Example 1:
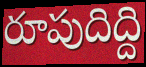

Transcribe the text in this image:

రూపుదిద్ది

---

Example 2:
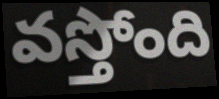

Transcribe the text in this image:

వస్తోంది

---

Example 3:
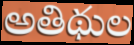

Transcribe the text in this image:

అతిథుల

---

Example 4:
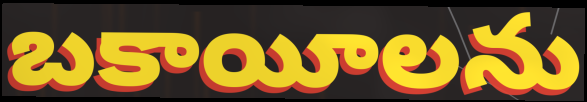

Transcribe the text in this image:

బకాయీలను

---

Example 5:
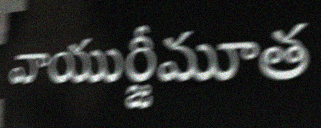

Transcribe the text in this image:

వాయుర్జీమూత